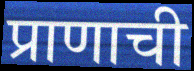
प्राणाची